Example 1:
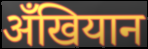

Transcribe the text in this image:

अँखियान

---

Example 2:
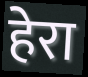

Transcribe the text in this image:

हेरा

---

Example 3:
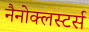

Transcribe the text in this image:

नैनोक्लस्टर्स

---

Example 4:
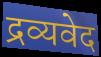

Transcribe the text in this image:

द्रव्यवेद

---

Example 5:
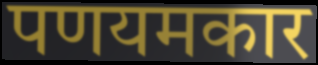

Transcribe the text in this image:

पणयमकार